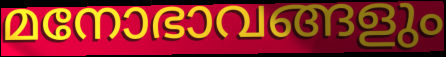
മനോഭാവങ്ങളും